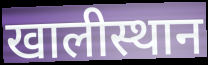
खालीस्थान